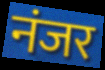
नंजर